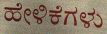
ಹೇಳಿಕೆಗಳು